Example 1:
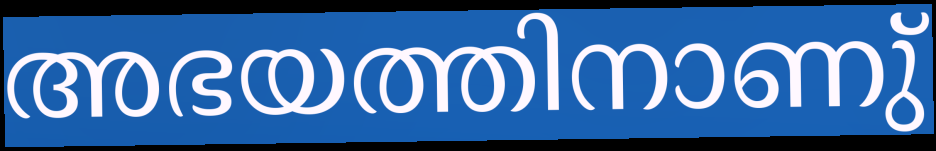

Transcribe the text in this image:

അഭയത്തിനാണു്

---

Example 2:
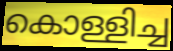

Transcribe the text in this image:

കൊള്ളിച്ച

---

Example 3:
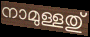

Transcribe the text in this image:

നാമുള്ളതു്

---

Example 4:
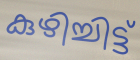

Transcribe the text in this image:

കുഴിച്ചിട്ട്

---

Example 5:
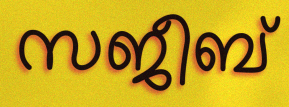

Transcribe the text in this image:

സജീബ്